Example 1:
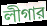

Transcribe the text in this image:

লীগার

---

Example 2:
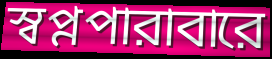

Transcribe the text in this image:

স্বপ্নপারাবারে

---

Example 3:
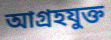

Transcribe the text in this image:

আগ্রহযুক্ত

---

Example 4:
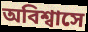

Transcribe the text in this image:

অবিশ্বাসে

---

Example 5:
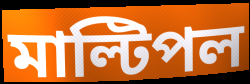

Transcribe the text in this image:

মাল্টিপল